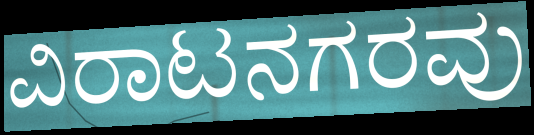
ವಿರಾಟನಗರವು